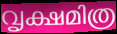
വൃക്ഷമിത്ര